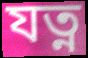
যত্ন